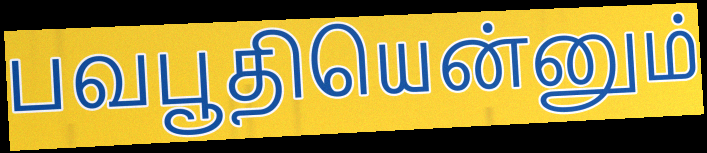
பவபூதியென்னும்